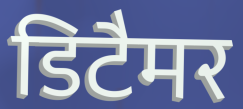
डिटैमर